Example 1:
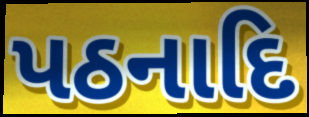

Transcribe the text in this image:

પઠનાદિ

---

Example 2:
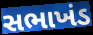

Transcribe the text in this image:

સભાખંડ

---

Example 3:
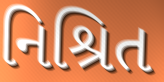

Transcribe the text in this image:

નિશ્રિત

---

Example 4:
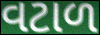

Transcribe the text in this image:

વટાળ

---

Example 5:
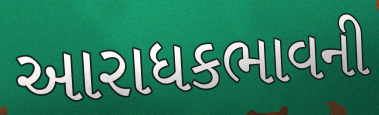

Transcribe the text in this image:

આરાધકભાવની